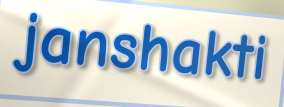
janshakti